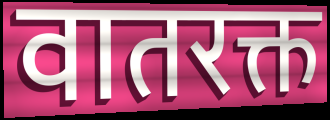
वातरक्त